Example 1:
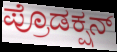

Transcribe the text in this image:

ಪ್ರೊಡಕ್ಷನ್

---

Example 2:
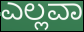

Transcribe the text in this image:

ಎಲ್ಲವಾ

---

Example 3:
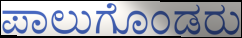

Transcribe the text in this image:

ಪಾಲುಗೊಂಡರು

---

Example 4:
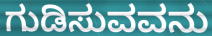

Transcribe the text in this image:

ಗುಡಿಸುವವನು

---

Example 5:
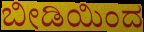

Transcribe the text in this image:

ಬೀಡಿಯಿಂದ